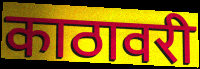
काठावरी